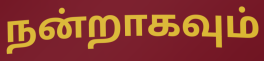
நன்றாகவும்